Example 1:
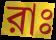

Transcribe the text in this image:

রাঃ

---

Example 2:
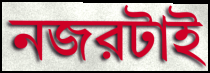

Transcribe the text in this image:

নজরটাই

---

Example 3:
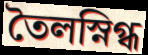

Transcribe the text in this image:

তৈলস্নিগ্ধ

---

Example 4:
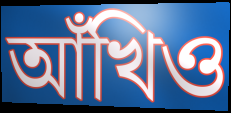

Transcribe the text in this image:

আঁখিও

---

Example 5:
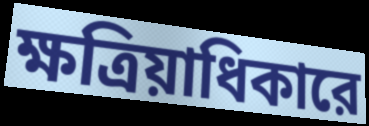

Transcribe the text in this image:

ক্ষত্রিয়াধিকারে